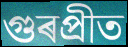
গুৰপ্ৰীত